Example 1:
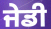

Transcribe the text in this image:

ਜੇਡੀ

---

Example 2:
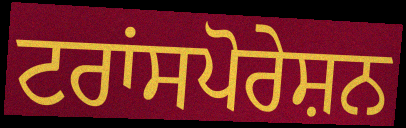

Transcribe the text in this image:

ਟਰਾਂਸਪੋਰੇਸ਼ਨ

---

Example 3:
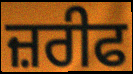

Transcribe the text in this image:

ਜ਼ਰੀਫ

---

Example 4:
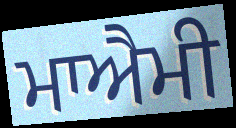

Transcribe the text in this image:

ਮਾਐਮੀ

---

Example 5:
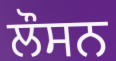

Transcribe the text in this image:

ਲੌਸਨ